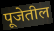
पूजेतील